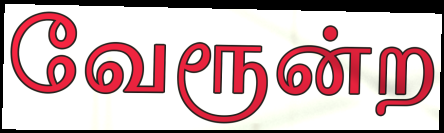
வேரூன்ற